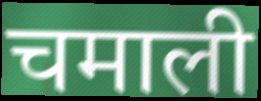
चमाली